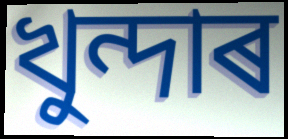
খুন্দাৰ